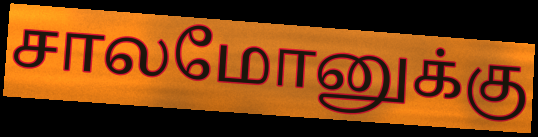
சாலமோனுக்கு